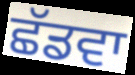
ਛੱਡਵਾ